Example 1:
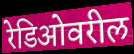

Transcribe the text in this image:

रेडिओवरील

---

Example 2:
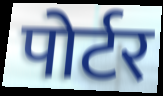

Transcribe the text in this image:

पोर्टर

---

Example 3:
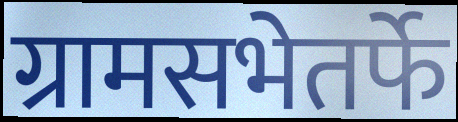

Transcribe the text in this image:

ग्रामसभेतर्फे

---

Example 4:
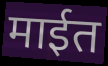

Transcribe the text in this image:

माईत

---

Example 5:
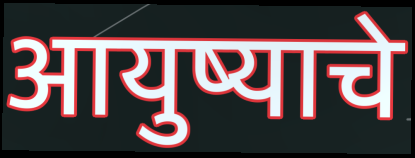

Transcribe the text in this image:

आयुष्याचे